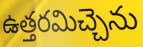
ఉత్తరమిచ్చెను